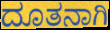
ದೂತನಾಗಿ